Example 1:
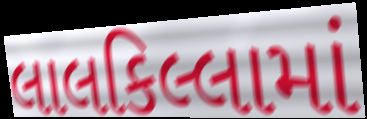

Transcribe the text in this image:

લાલકિલ્લામાં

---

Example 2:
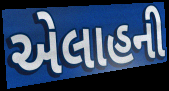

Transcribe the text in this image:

એલાહની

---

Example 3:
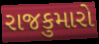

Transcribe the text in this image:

રાજકુમારો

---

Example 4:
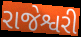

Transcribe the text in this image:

રાજેશ્વરી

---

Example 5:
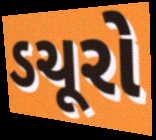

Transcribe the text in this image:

ડચૂરો